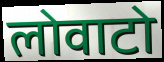
लोवाटो